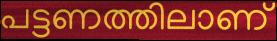
പട്ടണത്തിലാണ്